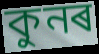
কুনৰ